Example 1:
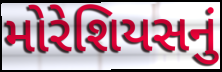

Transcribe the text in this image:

મોરેશિયસનું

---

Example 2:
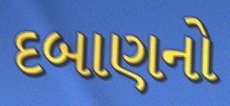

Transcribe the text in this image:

દબાણનો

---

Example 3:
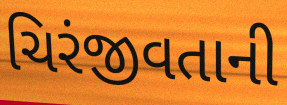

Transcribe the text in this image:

ચિરંજીવતાની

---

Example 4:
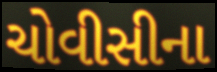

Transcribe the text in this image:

ચોવીસીના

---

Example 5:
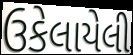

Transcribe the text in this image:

ઉકેલાયેલી